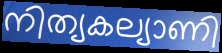
നിത്യകല്യാണി